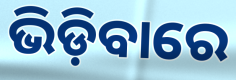
ଭିଡ଼ିବାରେ